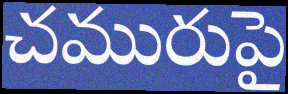
చమురుపై